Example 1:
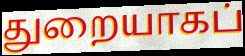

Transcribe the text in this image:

துறையாகப்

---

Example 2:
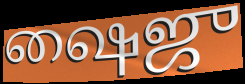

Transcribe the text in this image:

ஷைஜு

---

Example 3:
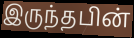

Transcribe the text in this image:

இருந்தபின்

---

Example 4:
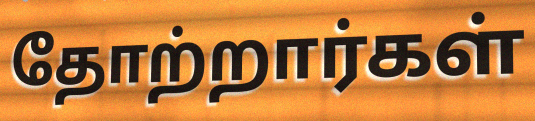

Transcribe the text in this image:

தோற்றார்கள்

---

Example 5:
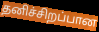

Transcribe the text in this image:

தனிச்சிறப்பான